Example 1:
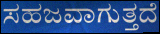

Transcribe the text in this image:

ಸಹಜವಾಗುತ್ತದೆ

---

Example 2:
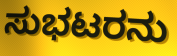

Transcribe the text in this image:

ಸುಭಟರನು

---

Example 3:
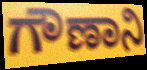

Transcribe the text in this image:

ಗೌಣಾನಿ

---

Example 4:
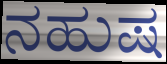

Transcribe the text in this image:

ನಹುಷ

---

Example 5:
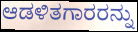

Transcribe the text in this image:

ಆಡಳಿತಗಾರರನ್ನು